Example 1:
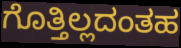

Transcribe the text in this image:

ಗೊತ್ತಿಲ್ಲದಂತಹ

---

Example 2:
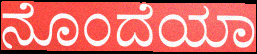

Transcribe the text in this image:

ನೊಂದೆಯಾ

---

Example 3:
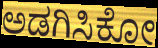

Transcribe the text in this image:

ಅಡಗಿಸಿಕೋ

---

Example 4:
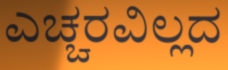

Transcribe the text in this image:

ಎಚ್ಚರವಿಲ್ಲದ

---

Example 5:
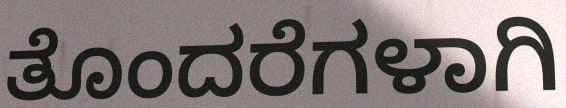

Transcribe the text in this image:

ತೊಂದರೆಗಳಾಗಿ